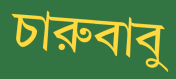
চারুবাবু